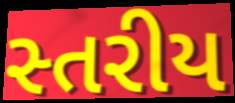
સ્તરીય